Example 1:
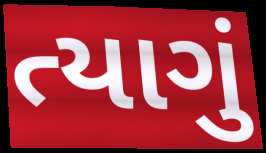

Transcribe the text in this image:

ત્યાગું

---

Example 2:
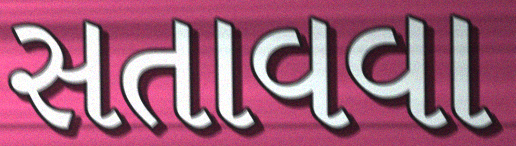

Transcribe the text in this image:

સતાવવા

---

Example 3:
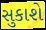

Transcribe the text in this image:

સુકાશે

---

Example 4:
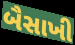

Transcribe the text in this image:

બૈસાખી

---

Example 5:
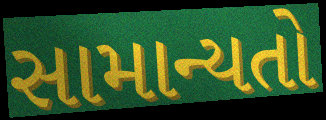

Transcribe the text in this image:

સામાન્યતો